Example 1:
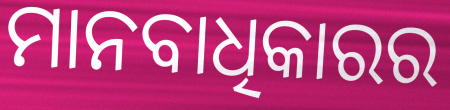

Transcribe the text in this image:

ମାନବାଧିକାରର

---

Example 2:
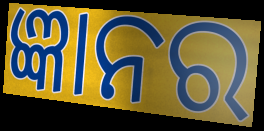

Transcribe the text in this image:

ଜ୍ଞାନର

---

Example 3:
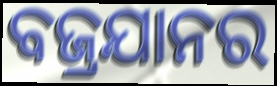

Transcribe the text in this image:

ବଜ୍ରଯାନର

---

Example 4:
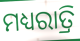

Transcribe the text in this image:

ମଧ୍ୟରାତ୍ରି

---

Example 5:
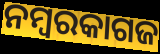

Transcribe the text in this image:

ନମ୍ବରକାଗଜ